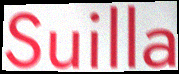
Suilla